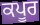
ਕਪੂਰ